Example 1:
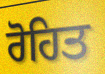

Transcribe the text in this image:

ਰੋਹਿਤ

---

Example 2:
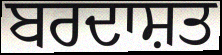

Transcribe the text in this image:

ਬਰਦਾਸ਼ਤ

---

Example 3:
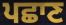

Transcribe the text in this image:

ਪਛਾਣ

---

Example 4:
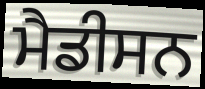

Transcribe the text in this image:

ਮੈਡੀਸਨ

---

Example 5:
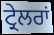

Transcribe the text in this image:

ਟ੍ਰੇਲਰਾਂ